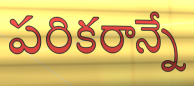
పరికరాన్నే